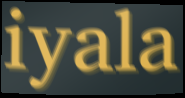
iyala